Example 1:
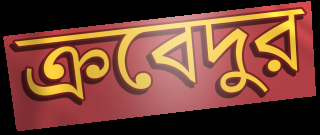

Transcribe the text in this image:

ক্রবেদুর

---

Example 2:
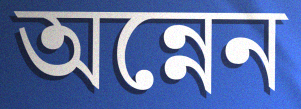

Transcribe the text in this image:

অন্নেন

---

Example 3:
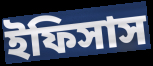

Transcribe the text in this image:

ইফিসাস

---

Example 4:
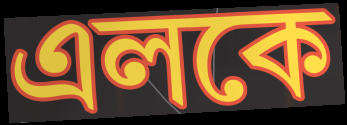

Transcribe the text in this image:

এলকে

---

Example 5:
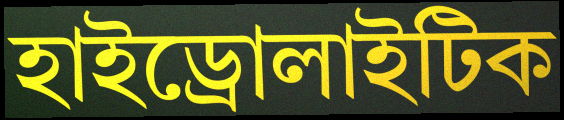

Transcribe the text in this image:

হাইড্রোলাইটিক